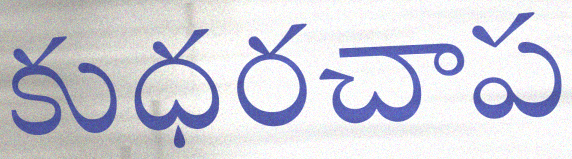
కుధరచాప